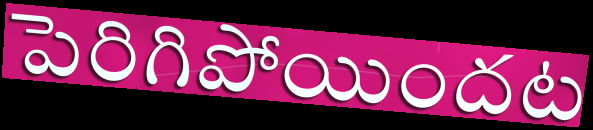
పెరిగిపోయిందట